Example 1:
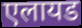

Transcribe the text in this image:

एलायड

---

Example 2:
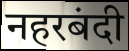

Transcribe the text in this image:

नहरबंदी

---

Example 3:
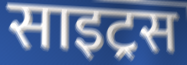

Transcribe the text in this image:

साइट्रस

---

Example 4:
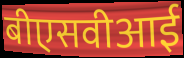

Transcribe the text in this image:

बीएसवीआई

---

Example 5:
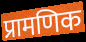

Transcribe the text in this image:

प्रामणिक